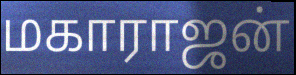
மகாராஜன்